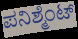
ಪನಿಶ್ಮೆಂಟ್